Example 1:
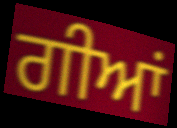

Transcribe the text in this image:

ਗੀਆਂ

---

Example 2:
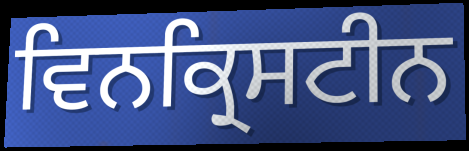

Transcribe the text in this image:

ਵਿਨਕ੍ਰਿਸਟੀਨ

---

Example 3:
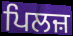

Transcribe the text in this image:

ਪਿਲਜ਼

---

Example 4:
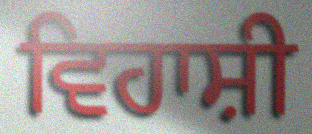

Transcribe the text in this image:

ਵਿਹਾਸ਼ੀ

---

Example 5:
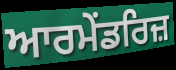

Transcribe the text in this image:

ਆਰਮੇਂਡਰਿਜ਼